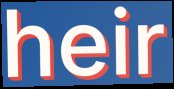
heir